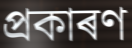
প্ৰকাৰণ